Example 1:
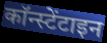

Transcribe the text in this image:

कॉन्स्टेंटाइन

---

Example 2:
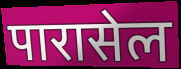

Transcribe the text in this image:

पारासेल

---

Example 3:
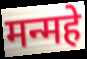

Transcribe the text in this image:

मन्महे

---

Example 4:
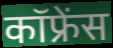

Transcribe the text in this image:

कॉफ्रेंस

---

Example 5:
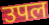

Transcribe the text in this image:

उपल